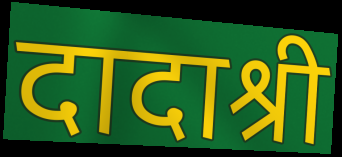
दादाश्री